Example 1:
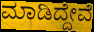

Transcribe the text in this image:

ಮಾಡಿದ್ದೇವೆ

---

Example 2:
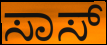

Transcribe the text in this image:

ಸಾಸ್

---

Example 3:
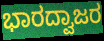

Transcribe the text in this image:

ಭಾರದ್ವಾಜರ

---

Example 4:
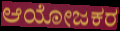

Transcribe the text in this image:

ಆಯೋಜಕರ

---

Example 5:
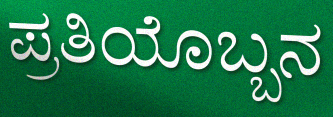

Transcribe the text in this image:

ಪ್ರತಿಯೊಬ್ಬನ